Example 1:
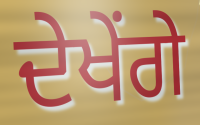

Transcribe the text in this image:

ਦੇਖੇਂਗੇ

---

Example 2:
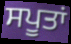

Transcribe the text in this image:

ਸਪੂਤਾਂ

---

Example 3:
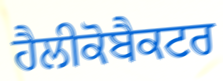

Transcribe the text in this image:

ਹੈਲੀਕੋਬੈਕਟਰ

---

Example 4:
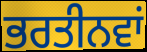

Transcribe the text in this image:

ਭਰਤੀਨਵਾਂ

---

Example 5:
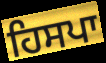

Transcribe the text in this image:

ਹਿਸਪਾ